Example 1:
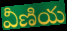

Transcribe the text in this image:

వీణియ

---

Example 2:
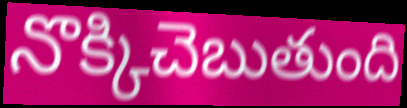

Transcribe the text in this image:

నొక్కిచెబుతుంది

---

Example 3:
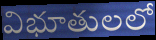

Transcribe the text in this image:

విభూతులలో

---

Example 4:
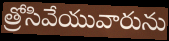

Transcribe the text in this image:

త్రోసివేయువారును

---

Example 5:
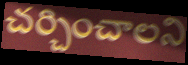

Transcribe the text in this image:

చర్చించాలని